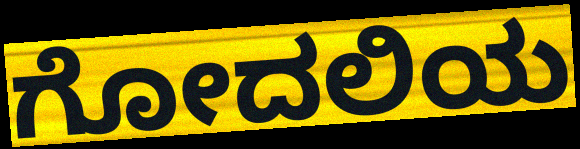
ಗೋದಲಿಯ